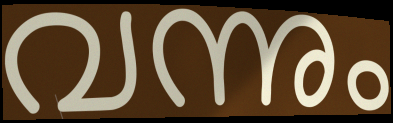
വന്നും